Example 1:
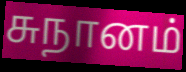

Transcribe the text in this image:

சுநானம்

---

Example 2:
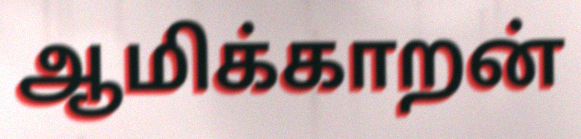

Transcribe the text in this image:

ஆமிக்காறன்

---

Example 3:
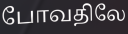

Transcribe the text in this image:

போவதிலே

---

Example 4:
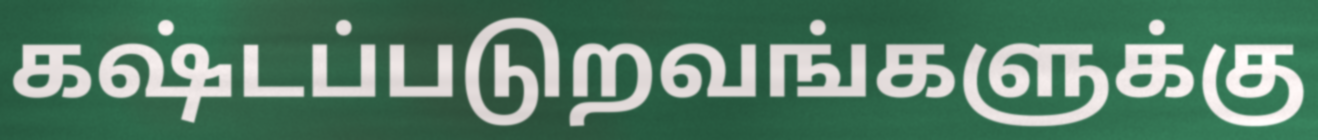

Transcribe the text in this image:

கஷ்டப்படுறவங்களுக்கு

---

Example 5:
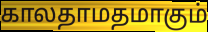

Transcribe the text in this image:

காலதாமதமாகும்